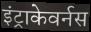
इंट्राकेवर्नस